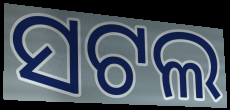
ସଟଲ